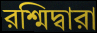
রশ্মিদ্বারা